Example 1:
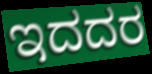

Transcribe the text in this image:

ಇದದರ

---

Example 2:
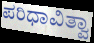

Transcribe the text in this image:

ಪರಿಧಾವಿತ್ವಾ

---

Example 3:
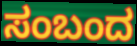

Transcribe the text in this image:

ಸಂಬಂದ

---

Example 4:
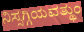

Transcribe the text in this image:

ನಿಸ್ಸಗ್ಗಿಯವತ್ಥುಂ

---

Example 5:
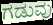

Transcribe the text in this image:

ಗಡುವು